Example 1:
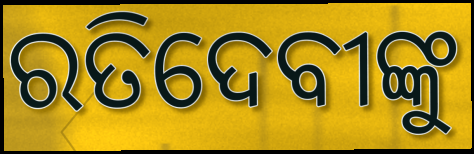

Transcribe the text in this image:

ରତିଦେବୀଙ୍କୁ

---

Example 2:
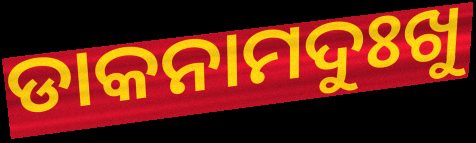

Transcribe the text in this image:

ଡାକନାମଦୁଃଖୁ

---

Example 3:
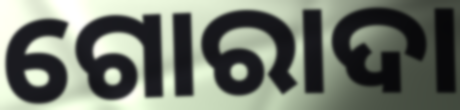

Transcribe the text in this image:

ଗୋରାଦା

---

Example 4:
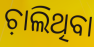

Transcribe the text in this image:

ଚ଼ାଲିଥିବା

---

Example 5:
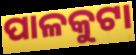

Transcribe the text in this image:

ପାଳକୁଟା